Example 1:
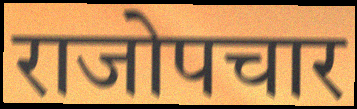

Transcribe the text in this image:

राजोपचार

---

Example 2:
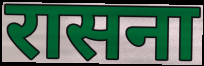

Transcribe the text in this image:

रासना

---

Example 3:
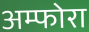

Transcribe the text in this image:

अम्फोरा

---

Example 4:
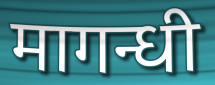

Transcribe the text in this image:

मागन्धी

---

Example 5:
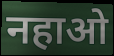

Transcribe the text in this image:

नहाओ